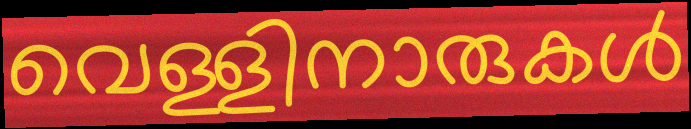
വെള്ളിനാരുകൾ